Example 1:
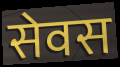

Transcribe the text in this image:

सेवस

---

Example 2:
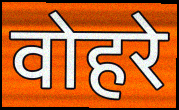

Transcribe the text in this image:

वोहरे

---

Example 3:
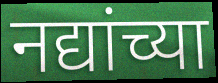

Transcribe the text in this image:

नद्यांच्या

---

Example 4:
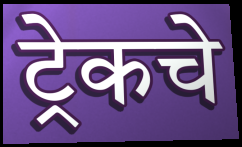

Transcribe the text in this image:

ट्रेकचे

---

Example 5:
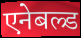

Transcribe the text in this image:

एनेबल्ड